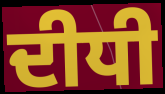
ਦੀਧੀ